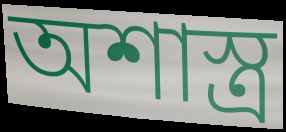
অশাস্ত্র